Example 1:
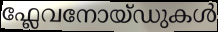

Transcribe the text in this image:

ഫ്ലേവനോയ്ഡുകൾ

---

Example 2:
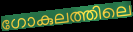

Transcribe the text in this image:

ഗോകുലത്തിലെ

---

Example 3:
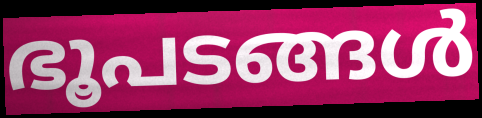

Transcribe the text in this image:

ഭൂപടങ്ങൾ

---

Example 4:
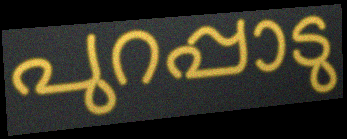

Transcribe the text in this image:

പുറപ്പാടു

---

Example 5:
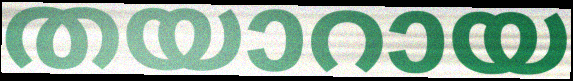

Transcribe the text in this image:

തയാറായ